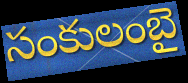
సంకులంబై